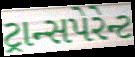
ટ્રાન્સપેરેન્ટ